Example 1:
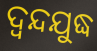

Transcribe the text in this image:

ଦ୍ୱନ୍ଦଯୁଦ୍ଧ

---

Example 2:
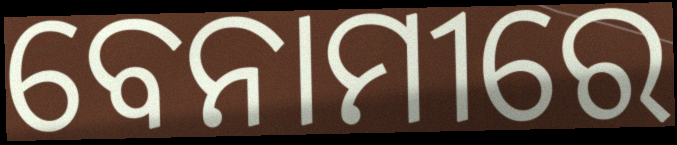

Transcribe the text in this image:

ବେନାମୀରେ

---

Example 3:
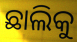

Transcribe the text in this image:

ଛାଲିକୁ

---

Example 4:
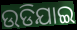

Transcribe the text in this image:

ଉଡିଯାଇ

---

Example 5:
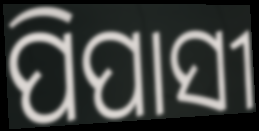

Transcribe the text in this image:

ପିପାସୀ